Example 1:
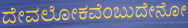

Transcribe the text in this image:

ದೇವಲೋಕವೆಂಬುದೇನೋ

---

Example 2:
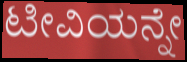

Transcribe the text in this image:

ಟೀವಿಯನ್ನೇ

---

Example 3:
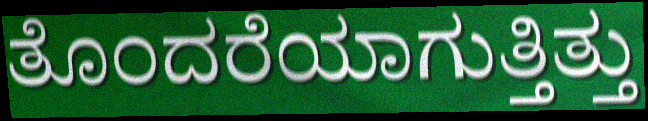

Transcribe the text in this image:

ತೊಂದರೆಯಾಗುತ್ತಿತ್ತು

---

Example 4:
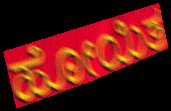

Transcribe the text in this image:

ಹೋಯಿತ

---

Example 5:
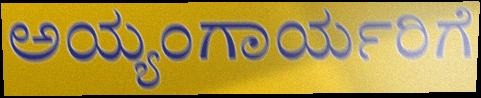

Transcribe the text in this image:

ಅಯ್ಯಂಗಾರ್ಯರಿಗೆ